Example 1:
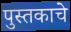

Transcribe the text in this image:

पुस्तकाचे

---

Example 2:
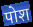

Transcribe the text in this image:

पोश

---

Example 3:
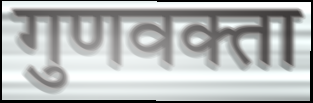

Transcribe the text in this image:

गुणवक्ता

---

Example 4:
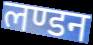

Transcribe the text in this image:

लण्डन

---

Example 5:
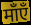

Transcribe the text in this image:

माँएँ